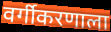
वर्गीकरणाला